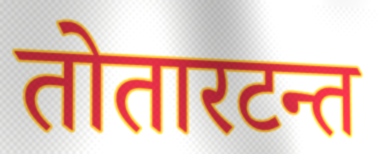
तोतारटन्त